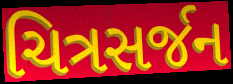
ચિત્રસર્જન